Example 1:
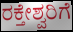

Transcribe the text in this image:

ರಕ್ತೇಶ್ವರಿಗೆ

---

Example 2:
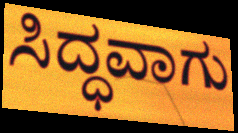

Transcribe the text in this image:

ಸಿದ್ಧವಾಗು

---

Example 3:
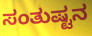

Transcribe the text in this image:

ಸಂತುಷ್ಟನ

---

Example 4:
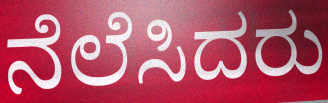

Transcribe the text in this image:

ನೆಲೆಸಿದರು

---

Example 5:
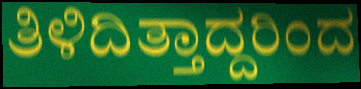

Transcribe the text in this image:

ತಿಳಿದಿತ್ತಾದ್ದರಿಂದ